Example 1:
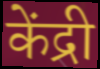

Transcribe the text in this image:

केंद्री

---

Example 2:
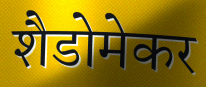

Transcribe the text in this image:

शैडोमेकर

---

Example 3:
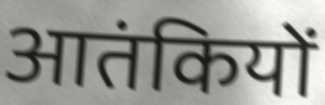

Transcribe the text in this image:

आतंकियों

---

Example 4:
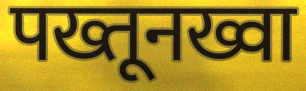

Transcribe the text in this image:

पख्तूनख्वा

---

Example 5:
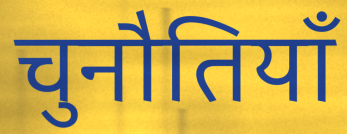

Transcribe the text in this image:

चुनौतियॉं